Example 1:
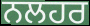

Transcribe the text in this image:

ਨਲਹਰ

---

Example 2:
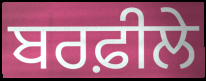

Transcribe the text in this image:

ਬਰਫ਼ੀਲੇ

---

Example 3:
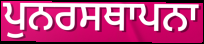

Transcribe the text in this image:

ਪੁਨਰਸਥਾਪਨਾ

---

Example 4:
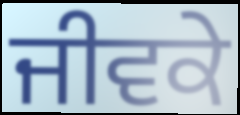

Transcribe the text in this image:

ਜੀਵਕੇ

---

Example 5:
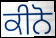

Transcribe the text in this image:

ਕੀਨੋ